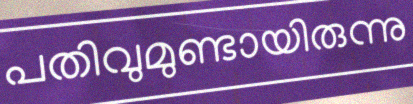
പതിവുമുണ്ടായിരുന്നു